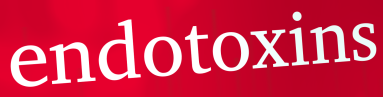
endotoxins